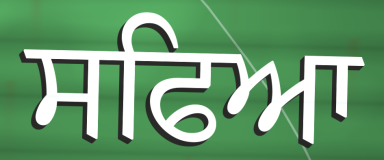
ਸਫਿਆ